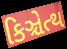
કિઞ્ચેત્થ